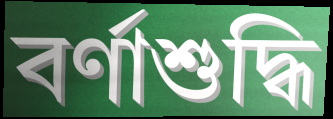
বর্ণাশুদ্ধি